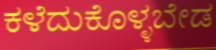
ಕಳೆದುಕೊಳ್ಳಬೇಡ